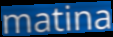
matina